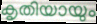
കൃതിയായും